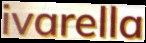
ivarella